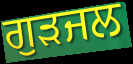
ਗੁੜਜਲ